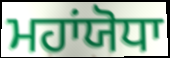
ਮਹਾਂਯੋਧਾ